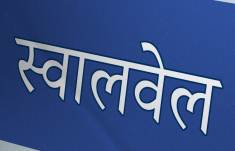
स्वालवेल